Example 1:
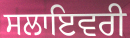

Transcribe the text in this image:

ਸਲਾਇਵਰੀ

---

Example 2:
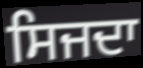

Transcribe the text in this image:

ਸਿਜਦਾ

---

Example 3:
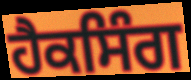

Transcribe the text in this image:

ਹੈਕਸਿੰਗ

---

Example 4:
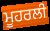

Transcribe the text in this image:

ਮੂਹਰਲੀ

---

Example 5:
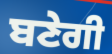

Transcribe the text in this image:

ਬਣੇਗੀ